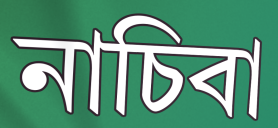
নাচিবা